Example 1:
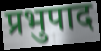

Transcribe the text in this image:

प्रभुपाद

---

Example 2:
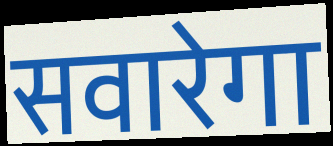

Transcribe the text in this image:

सवारेगा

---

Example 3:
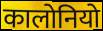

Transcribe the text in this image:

कालोनियो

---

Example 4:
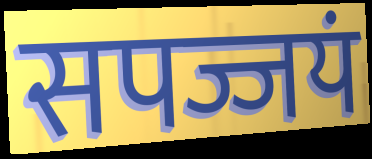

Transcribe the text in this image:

सपज्जयं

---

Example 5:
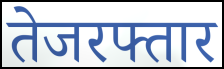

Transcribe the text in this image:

तेजरफ्तार